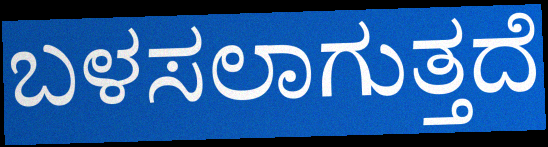
ಬಳಸಲಾಗುತ್ತದೆ